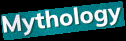
Mythology